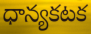
ధాన్యకటక